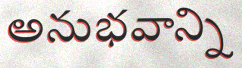
అనుభవాన్ని